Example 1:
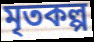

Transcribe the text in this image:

মৃতকল্প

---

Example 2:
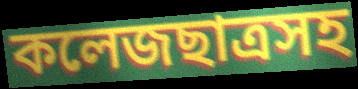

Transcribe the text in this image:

কলেজছাত্রসহ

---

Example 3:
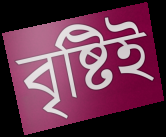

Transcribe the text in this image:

বৃষ্টিই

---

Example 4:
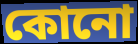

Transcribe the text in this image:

কোনো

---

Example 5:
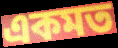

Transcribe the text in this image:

একমত